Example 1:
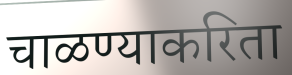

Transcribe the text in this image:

चाळण्याकरिता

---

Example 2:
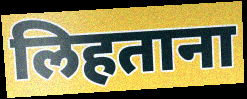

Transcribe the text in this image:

लिहताना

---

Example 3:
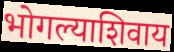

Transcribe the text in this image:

भोगल्याशिवाय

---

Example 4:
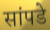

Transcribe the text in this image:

सांपडे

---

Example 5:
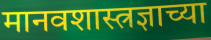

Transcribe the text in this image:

मानवशास्त्रज्ञाच्या